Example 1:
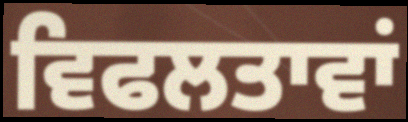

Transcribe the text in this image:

ਵਿਫਲਤਾਵਾਂ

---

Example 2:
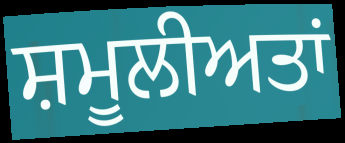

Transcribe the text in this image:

ਸ਼ਮੂਲੀਅਤਾਂ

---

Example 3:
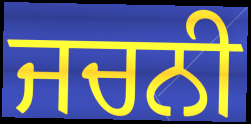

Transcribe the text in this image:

ਜਚਨੀ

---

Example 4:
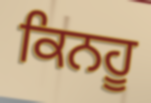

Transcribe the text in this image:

ਕਿਨਹੂ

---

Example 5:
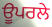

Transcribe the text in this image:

ਊਪਰਲੇ